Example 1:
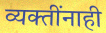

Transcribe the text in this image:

व्यक्तींनाही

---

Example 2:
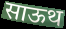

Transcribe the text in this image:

साऊथ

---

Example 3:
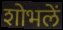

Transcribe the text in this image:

शोभलें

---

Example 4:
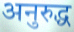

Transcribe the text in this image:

अनुरुद्ध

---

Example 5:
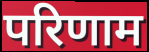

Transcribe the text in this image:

परिणाम